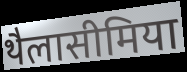
थैलासीमिया